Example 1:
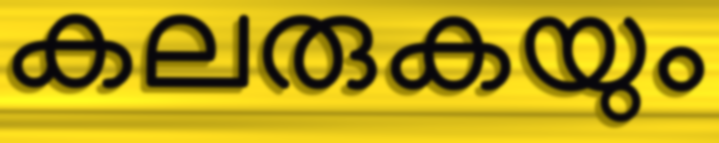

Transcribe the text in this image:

കലരുകയും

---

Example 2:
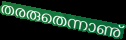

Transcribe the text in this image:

തരരുതെന്നാണു്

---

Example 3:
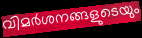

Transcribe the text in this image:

വിമർശനങ്ങളുടെയും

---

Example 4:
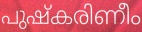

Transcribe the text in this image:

പുഷ്കരിണീം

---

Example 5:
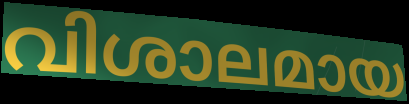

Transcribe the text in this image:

വിശാലമായ